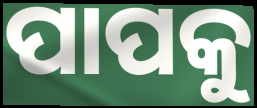
ପାପକୁ